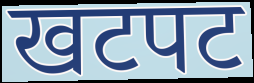
खटपट